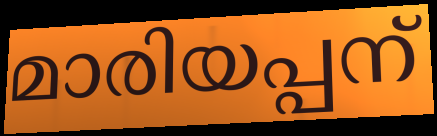
മാരിയപ്പന്